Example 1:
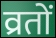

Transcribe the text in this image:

व्रतों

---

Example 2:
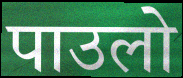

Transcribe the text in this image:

पाउलो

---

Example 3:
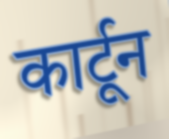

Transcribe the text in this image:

कार्टून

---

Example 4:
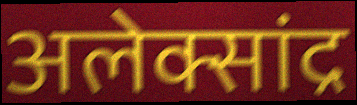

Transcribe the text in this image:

अलेक्सांद्र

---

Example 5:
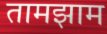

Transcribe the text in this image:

तामझाम